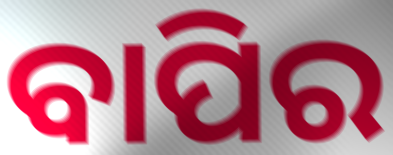
ବାପିର